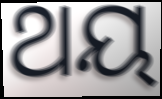
ଥୟ